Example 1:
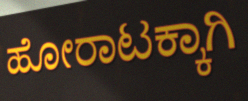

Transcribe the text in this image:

ಹೋರಾಟಕ್ಕಾಗಿ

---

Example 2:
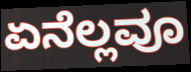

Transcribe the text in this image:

ಏನೆಲ್ಲವೂ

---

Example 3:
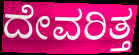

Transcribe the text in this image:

ದೇವರಿತ್ತ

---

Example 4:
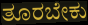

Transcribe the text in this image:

ತೂರಬೇಕು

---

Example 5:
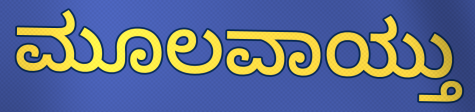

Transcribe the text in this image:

ಮೂಲವಾಯ್ತು